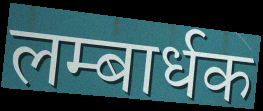
लम्बार्धक